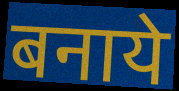
बनाये